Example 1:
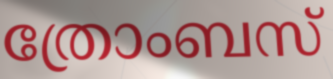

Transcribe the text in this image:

ത്രോംബസ്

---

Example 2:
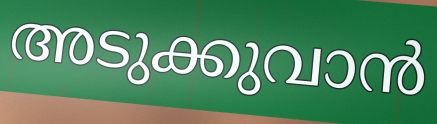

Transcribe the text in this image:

അടുക്കുവാൻ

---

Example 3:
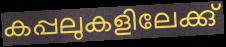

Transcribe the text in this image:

കപ്പലുകളിലേക്കു്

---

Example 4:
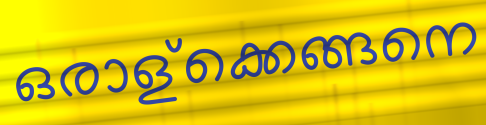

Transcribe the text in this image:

ഒരാള്ക്കെങ്ങനെ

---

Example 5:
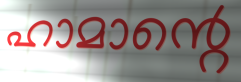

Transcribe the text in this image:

ഹാമാന്റെ